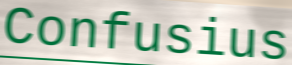
Confusius